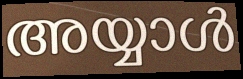
അയ്യാൾ